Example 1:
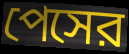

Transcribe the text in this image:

পেসের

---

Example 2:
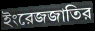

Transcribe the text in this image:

ইংরেজজাতির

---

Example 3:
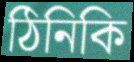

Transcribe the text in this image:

ঠিনিকি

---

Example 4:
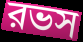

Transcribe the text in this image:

রভস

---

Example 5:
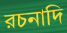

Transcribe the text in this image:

রচনাদি